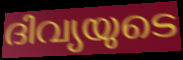
ദിവ്യയുടെ